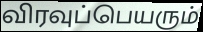
விரவுப்பெயரும்